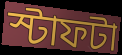
স্টাফটা